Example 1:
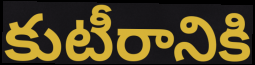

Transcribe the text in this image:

కుటీరానికి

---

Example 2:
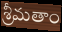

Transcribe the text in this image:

శ్రీమతాం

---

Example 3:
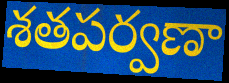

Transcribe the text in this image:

శతపర్వణా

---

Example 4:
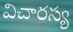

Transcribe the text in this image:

విచారస్య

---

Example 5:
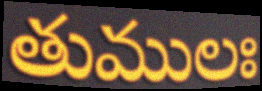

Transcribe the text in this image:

తుములః